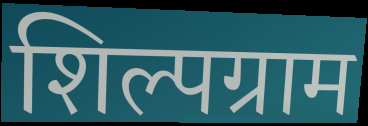
शिल्पग्राम